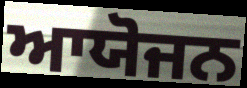
ਆਯੋਜਨ